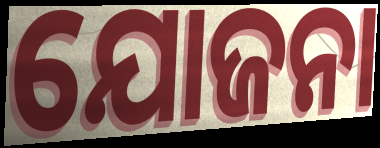
ଯୋଜନା